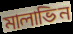
মালাভিন